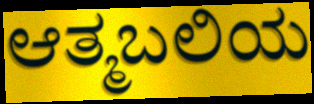
ಆತ್ಮಬಲಿಯ